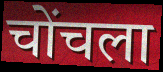
चोंचला